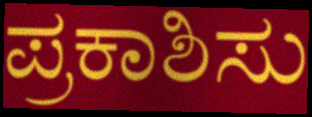
ಪ್ರಕಾಶಿಸು